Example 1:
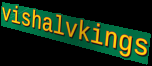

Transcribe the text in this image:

vishalvkings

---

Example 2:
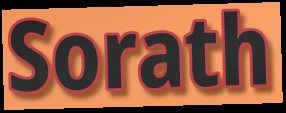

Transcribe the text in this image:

Sorath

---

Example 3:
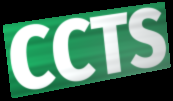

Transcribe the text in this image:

CCTS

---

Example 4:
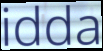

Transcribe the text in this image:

idda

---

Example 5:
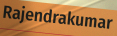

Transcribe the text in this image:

Rajendrakumar